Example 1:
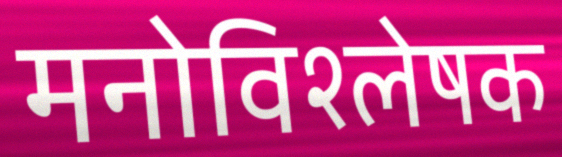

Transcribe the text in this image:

मनोविश्लेषक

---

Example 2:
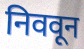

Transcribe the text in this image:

निववून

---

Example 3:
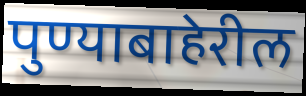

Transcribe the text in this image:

पुण्याबाहेरील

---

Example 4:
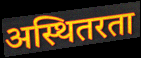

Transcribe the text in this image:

अस्थितरता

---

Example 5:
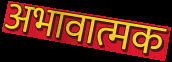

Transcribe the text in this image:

अभावात्मक